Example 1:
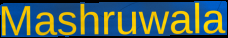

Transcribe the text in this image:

Mashruwala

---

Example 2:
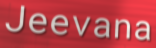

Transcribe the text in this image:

Jeevana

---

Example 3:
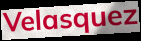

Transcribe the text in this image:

Velasquez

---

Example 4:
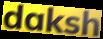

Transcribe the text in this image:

daksh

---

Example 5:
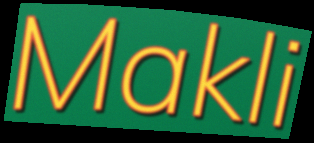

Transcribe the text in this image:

Makli